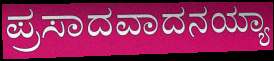
ಪ್ರಸಾದವಾದನಯ್ಯಾ